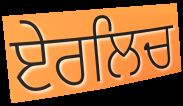
ਏਰਲਿਚ